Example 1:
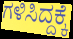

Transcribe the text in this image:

ಗಳಿಸಿದ್ದಕ್ಕೆ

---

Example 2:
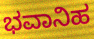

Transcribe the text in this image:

ಭವಾನಿಹ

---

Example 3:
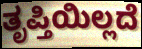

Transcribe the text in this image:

ತೃಪ್ತಿಯಿಲ್ಲದೆ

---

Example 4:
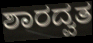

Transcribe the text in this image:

ಶಾರದ್ವತ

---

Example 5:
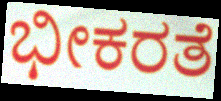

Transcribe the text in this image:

ಭೀಕರತೆ